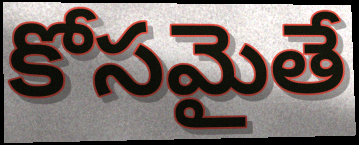
కోసమైతే